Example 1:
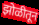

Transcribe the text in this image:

झोळीतून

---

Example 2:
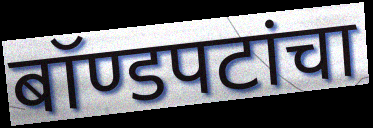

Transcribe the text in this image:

बॉण्डपटांचा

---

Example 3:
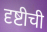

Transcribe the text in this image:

दृष्टीची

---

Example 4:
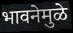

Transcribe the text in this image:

भावनेमुळे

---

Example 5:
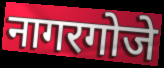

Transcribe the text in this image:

नागरगोजे